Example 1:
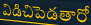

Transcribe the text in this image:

విడిచిపెడతారో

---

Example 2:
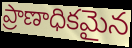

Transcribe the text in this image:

ప్రాణాధికమైన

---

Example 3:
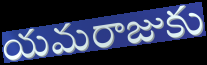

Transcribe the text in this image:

యమరాజుకు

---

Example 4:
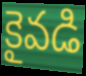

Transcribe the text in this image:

కైవడి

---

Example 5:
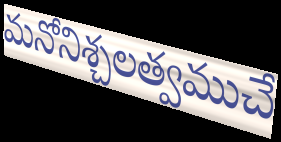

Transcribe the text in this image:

మనోనిశ్చలత్వముచే